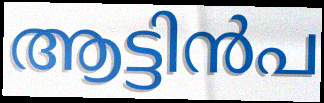
ആട്ടിൻപ